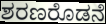
ಶರಣರೊಡನೆ